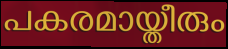
പകരമായ്തീരും